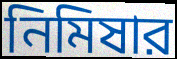
নিমিষার